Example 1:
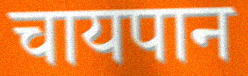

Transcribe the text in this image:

चायपान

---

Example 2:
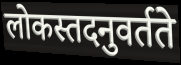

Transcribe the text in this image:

लोकस्तदनुवर्तते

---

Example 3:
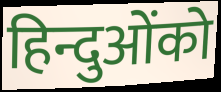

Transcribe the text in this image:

हिन्दुओंको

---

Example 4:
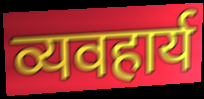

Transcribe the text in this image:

व्यवहार्य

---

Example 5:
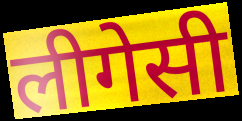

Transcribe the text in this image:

लीगेसी